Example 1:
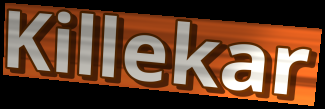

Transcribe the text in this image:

Killekar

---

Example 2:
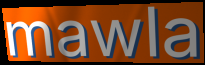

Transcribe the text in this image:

mawla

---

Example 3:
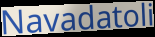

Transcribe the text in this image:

Navadatoli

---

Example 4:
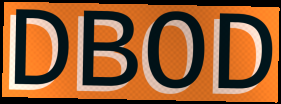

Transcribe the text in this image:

DBOD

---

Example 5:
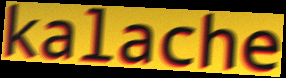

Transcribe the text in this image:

kalache